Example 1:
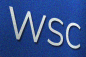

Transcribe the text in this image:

WSC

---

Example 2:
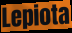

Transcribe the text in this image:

Lepiota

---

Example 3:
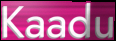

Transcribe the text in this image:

Kaadu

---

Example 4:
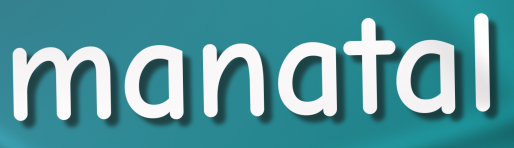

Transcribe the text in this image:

manatal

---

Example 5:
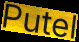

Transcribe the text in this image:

Putel